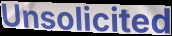
Unsolicited